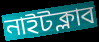
নাইটক্লাব